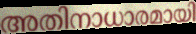
അതിനാധാരമായി